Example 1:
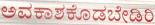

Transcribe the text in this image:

ಅವಕಾಶಕೊಡಬೇಡಿರಿ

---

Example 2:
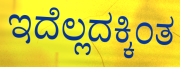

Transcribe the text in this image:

ಇದೆಲ್ಲದಕ್ಕಿಂತ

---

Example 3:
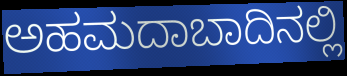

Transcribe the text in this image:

ಅಹಮದಾಬಾದಿನಲ್ಲಿ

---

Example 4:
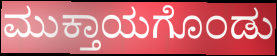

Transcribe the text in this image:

ಮುಕ್ತಾಯಗೊಂಡು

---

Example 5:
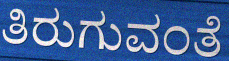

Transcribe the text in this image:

ತಿರುಗುವಂತೆ